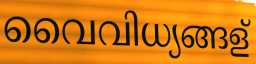
വൈവിധ്യങ്ങള്